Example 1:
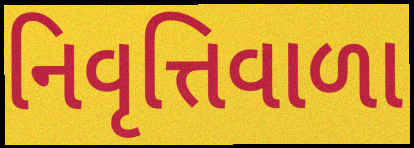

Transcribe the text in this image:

નિવૃત્તિવાળા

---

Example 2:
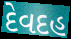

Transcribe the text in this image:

દેવદહ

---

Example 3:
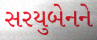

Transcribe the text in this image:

સરયુબેનને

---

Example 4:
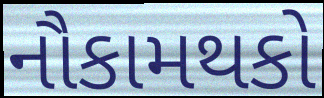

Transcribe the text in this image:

નૌકામથકો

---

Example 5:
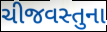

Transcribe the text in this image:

ચીજવસ્તુના